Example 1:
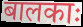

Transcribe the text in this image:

बालकाः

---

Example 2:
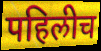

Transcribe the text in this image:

पहिलीच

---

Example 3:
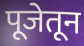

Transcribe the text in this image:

पूजेतून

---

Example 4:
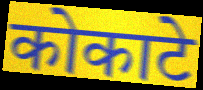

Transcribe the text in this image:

कोकाटे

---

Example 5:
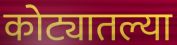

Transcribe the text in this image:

कोट्यातल्या